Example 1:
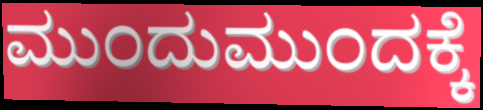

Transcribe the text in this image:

ಮುಂದುಮುಂದಕ್ಕೆ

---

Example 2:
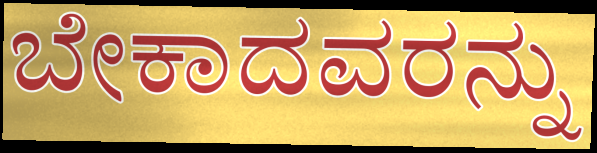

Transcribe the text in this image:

ಬೇಕಾದವರನ್ನು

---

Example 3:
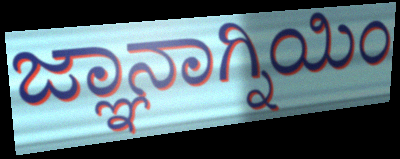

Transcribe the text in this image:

ಜ್ಞಾನಾಗ್ನಿಯಿಂ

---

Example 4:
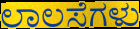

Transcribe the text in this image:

ಲಾಲಸೆಗಳು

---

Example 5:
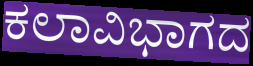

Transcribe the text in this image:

ಕಲಾವಿಭಾಗದ